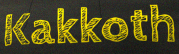
Kakkoth